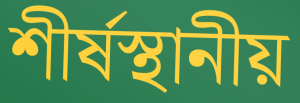
শীর্ষস্থানীয়